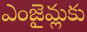
ఎంజైమ్లకు